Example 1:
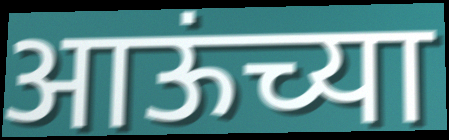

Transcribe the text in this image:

आऊंच्या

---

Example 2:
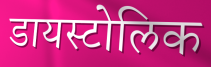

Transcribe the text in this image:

डायस्टोलिक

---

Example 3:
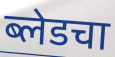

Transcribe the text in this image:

ब्लेडचा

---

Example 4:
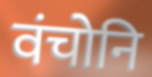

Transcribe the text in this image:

वंचोनि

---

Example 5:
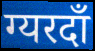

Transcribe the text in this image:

ग्यरदाँ